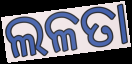
ଲଳତା